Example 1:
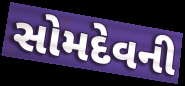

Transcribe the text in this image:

સોમદેવની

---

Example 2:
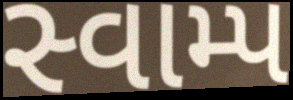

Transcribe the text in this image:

સ્વામ્પ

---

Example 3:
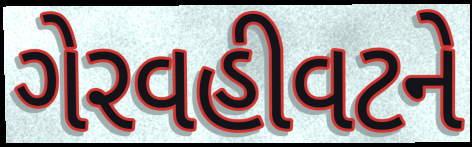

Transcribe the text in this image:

ગેરવહીવટને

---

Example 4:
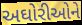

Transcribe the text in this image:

અઘોરીઓને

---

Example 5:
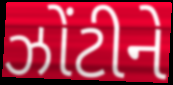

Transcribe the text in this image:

ઝોંટીને